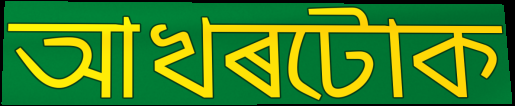
আখৰটোক